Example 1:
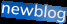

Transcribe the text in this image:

newblog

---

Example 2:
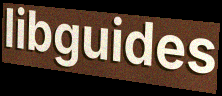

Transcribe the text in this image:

libguides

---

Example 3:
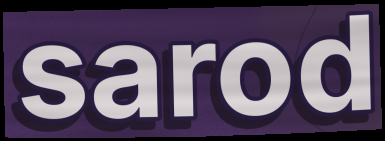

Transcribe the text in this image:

sarod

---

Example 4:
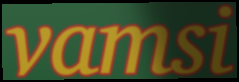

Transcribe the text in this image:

vamsi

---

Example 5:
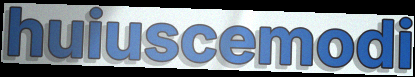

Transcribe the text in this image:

huiuscemodi